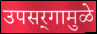
उपसर्गामुळे